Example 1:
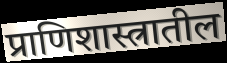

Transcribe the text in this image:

प्राणिशास्त्रातील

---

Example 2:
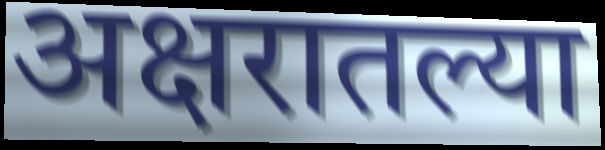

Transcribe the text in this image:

अक्षरातल्या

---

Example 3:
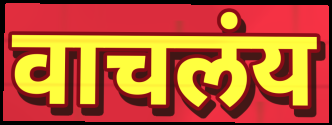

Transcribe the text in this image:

वाचलंय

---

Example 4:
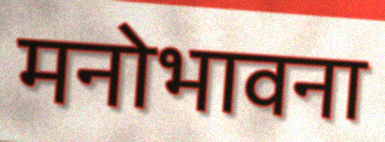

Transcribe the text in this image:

मनोभावना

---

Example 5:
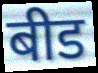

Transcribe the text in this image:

बीड